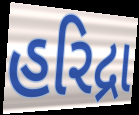
હરિદ્રા